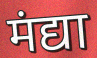
मंद्या